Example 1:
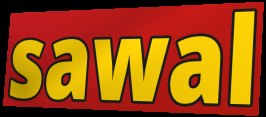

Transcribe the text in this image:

sawal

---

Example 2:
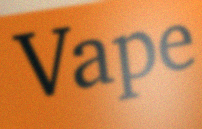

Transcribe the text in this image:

Vape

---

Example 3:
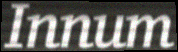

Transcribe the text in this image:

Innum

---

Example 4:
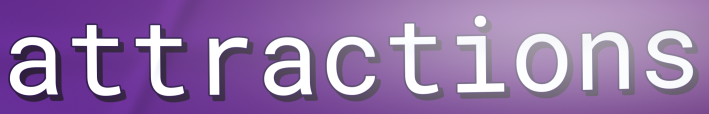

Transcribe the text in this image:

attractions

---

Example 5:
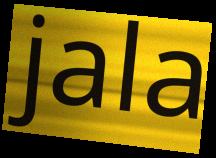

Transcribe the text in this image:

jala